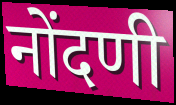
नोंदणी